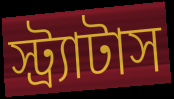
স্ট্র্যাটাস